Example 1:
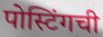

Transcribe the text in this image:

पोस्टिंगची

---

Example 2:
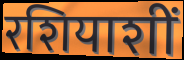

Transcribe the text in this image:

रशियाशीं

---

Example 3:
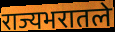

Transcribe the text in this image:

राज्यभरातले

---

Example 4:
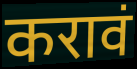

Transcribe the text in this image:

करावं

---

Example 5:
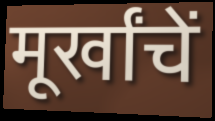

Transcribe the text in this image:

मूर्खांचें